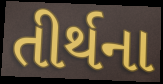
તીર્થના